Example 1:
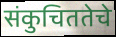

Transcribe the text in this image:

संकुचिततेचे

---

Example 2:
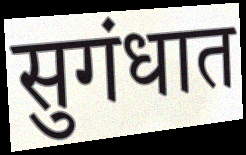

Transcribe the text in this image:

सुगंधात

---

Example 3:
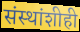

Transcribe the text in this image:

संस्थांशीही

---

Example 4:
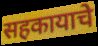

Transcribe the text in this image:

सहकायाचे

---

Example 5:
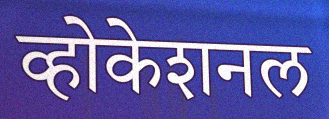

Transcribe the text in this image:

व्होकेशनल